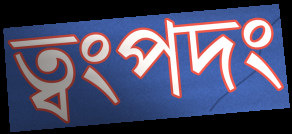
ত্বংপদং